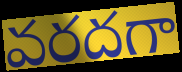
వరదగా